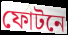
ফোটনে